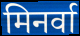
मिनर्वा